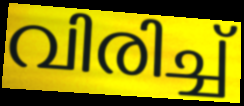
വിരിച്ച്